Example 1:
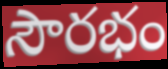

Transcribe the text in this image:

సౌరభం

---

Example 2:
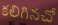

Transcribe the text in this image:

కలిగినచో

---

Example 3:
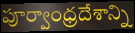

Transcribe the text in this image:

పూర్వాంధ్రదేశాన్ని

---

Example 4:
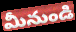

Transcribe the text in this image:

మీనుండి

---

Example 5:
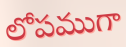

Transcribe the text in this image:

లోపముగా